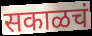
सकाळचं